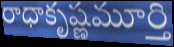
రాధాకృష్ణమూర్తి